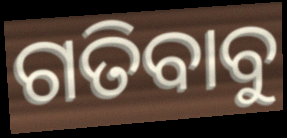
ଗତିବାବୁ